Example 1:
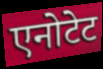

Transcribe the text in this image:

एनोटेट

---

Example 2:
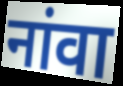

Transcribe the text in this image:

नांवा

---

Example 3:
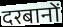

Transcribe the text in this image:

दरबानों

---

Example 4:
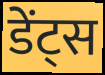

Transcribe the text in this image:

डेंट्स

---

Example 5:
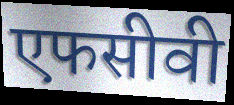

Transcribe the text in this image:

एफसीवी